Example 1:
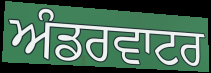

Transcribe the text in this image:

ਅੰਡਰਵਾਟਰ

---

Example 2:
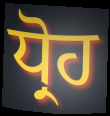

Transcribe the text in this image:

ਧ੍ਰੋਹ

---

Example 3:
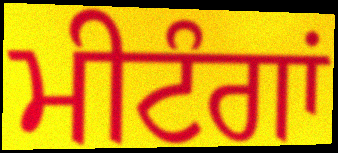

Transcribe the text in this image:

ਮੀਟੰਗਾਂ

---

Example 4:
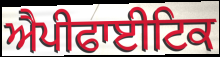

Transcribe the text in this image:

ਐਪੀਫਾਈਟਿਕ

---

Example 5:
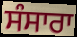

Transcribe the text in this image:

ਸੰਸਾਰਾ